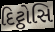
દિટ્ઠોસિ